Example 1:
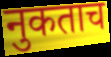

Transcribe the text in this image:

नुकताच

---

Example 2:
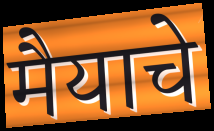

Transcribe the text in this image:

मैयाचे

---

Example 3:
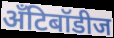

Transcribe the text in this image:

अँटिबॉडीज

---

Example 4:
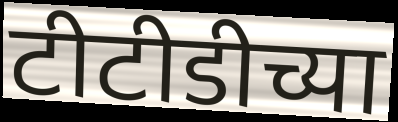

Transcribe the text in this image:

टीटीडीच्या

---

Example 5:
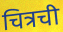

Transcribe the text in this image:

चित्रची